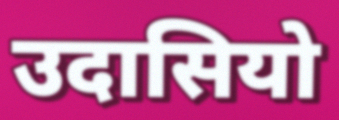
उदासियो